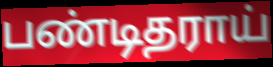
பண்டிதராய்